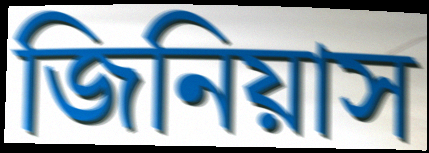
জিনিয়াস